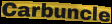
Carbuncle